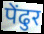
पेंढुर